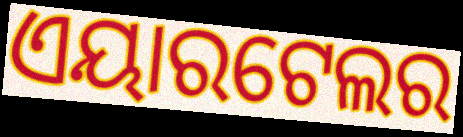
ଏୟାରଟେଲର